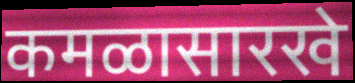
कमळासारखे